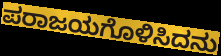
ಪರಾಜಯಗೊಳಿಸಿದನು